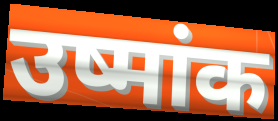
उष्मांक